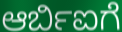
ಆರ್ಬಿಐಗೆ